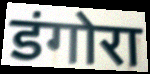
डंगोरा